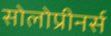
सोलोप्रीनर्स